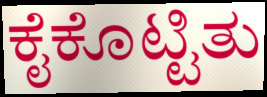
ಕೈಕೊಟ್ಟಿತು